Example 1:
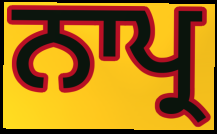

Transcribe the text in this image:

ਨਾਪ੍ਰ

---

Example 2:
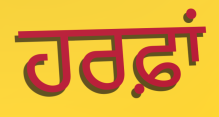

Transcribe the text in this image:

ਹਰਫ਼ਾਂ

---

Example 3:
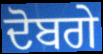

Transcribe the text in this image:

ਦੋਬਗੇ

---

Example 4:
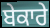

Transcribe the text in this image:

ਬੇਕਾਰੇ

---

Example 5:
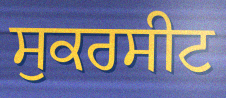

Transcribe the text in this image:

ਸੁਕਰਸੀਟ